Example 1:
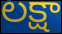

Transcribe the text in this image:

లక్షా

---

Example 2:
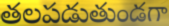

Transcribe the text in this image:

తలపడుతుండగా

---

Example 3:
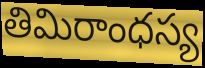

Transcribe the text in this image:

తిమిరాంధస్య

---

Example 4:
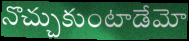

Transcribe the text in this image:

నొచ్చుకుంటాడేమో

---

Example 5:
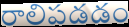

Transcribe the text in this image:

రాలిపడడం